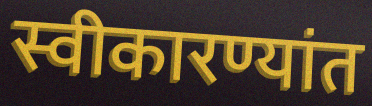
स्वीकारण्यांत